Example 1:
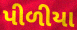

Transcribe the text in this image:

પીળીયા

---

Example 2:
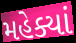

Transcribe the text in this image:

મહેક્યાં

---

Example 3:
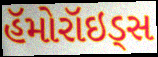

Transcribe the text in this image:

હૅમોરૉઇડ્સ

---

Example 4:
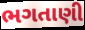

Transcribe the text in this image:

ભગતાણી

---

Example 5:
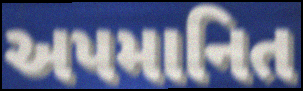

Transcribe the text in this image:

અપમાનિત